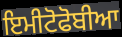
ਇਮੀਟੋਫੋਬੀਆ